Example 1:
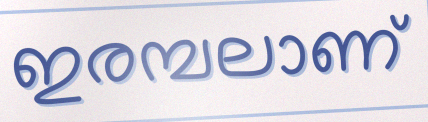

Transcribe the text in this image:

ഇരമ്പലാണ്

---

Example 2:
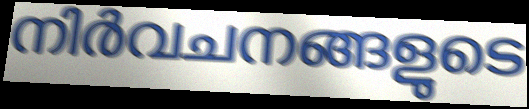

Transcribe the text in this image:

നിർവചനങ്ങളുടെ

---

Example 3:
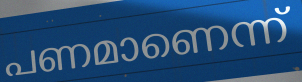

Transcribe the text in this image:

പണമാണെന്ന്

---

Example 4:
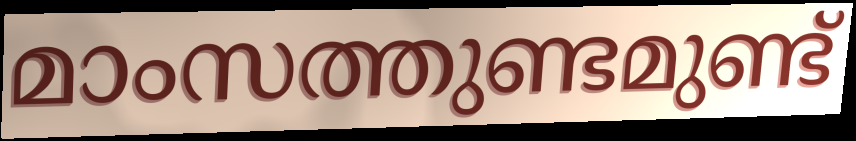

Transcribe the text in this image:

മാംസത്തുണ്ടമുണ്ട്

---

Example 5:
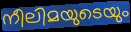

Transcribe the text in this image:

നീലിമയുടെയും